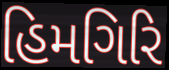
હિમગિરિ